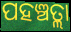
ପହଞ୍ଚତ୍ଲା